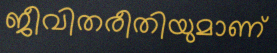
ജീവിതരീതിയുമാണ്